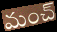
మంచ్